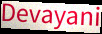
Devayani